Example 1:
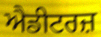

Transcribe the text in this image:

ਐਡੀਟਰਜ਼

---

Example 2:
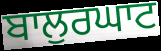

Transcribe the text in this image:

ਬਾਲੁਰਘਾਟ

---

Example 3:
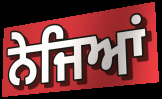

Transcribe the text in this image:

ਨੇਜਿਆਂ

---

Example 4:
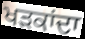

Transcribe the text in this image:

ਖੜਕਾਂਦਾ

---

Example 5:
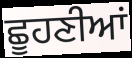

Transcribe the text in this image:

ਛੂਹਣੀਆਂ